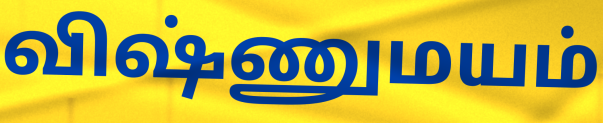
விஷ்ணுமயம்